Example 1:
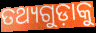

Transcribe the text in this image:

ତଥ୍ୟଗୁଡ଼ାକୁ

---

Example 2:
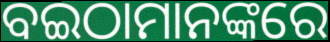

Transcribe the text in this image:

ବଇଠାମାନଙ୍କରେ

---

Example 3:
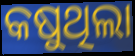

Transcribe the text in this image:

କଷୁଥିଲା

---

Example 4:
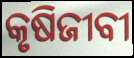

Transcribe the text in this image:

କୃଷିଜୀବୀ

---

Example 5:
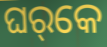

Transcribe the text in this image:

ଘର୍‌କେ